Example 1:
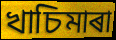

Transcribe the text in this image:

খাচিমাৰা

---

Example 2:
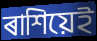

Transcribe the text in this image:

ৰাশিয়েই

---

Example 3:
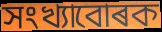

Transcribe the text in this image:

সংখ্যাবোৰক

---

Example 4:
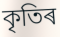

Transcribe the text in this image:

কৃতিৰ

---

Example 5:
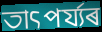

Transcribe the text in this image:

তাৎপৰ্য্যৰ